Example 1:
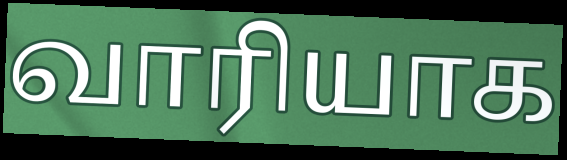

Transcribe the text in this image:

வாரியாக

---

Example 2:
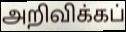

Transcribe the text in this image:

அறிவிக்கப்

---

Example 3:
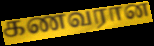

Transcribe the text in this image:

கணவரான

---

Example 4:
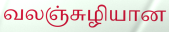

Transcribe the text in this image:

வலஞ்சுழியான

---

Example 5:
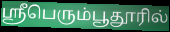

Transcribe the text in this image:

ஸ்ரீபெரும்பூதூரில்